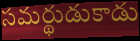
సమర్థుడుకాడు